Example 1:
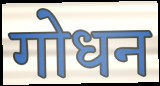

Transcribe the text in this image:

गोधन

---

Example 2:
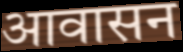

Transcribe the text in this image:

आवासन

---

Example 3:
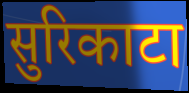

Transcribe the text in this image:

सुरिकाटा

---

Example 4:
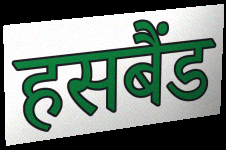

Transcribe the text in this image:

हसबैंड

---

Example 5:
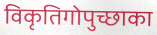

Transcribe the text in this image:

विकृतिगोपुच्छाका